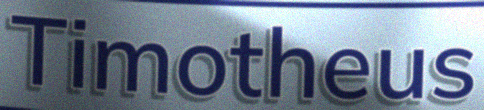
Timotheus